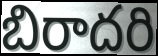
బిరాదరి